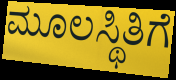
ಮೂಲಸ್ಥಿತಿಗೆ